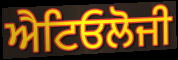
ਐਟਿਓਲੋਜੀ